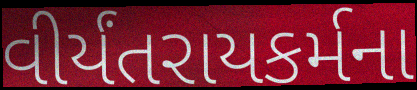
વીર્યંતરાયકર્મના